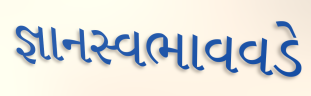
જ્ઞાનસ્વભાવવડે